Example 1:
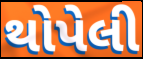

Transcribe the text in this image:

થોપેલી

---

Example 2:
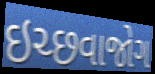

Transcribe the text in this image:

ઇચ્છવાજોગ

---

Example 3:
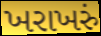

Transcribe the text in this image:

ખરાખરું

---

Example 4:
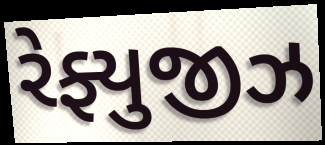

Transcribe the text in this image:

રેફ્યુજીઝ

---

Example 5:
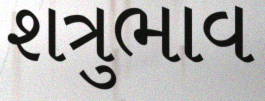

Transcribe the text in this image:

શત્રુભાવ